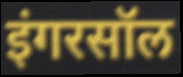
इंगरसॉल